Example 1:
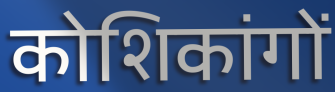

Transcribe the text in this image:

कोशिकांगों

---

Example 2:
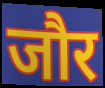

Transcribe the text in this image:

जौर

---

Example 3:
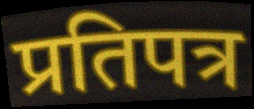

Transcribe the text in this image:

प्रतिपत्र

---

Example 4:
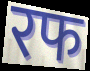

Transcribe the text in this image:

रफ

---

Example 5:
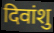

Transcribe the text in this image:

दिवांशु